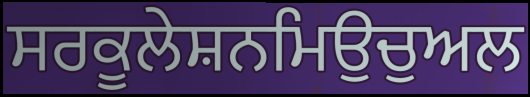
ਸਰਕੂਲੇਸ਼ਨਮਿਉਚੁਅਲ